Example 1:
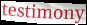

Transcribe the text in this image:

testimony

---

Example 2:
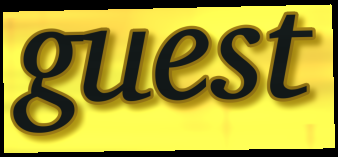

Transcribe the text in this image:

guest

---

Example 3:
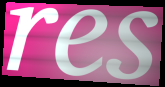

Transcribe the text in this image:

res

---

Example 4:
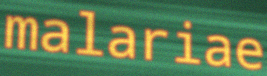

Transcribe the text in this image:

malariae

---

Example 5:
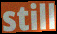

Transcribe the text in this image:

still